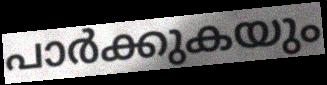
പാർക്കുകയും